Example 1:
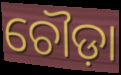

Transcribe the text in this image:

ଚୌଡ଼ା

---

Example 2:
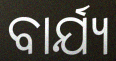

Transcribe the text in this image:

ବାର୍ଯ୍ୟ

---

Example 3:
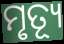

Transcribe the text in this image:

ମୃତ୍ୟୂ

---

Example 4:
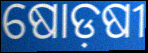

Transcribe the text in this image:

ଷୋଡ଼ଷୀ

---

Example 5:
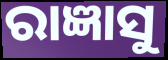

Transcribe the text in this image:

ରାଜ୍ଞାସୁ